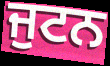
ਜੁਟਨ